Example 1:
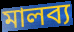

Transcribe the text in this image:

মালব্য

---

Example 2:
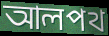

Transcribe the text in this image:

আলপথ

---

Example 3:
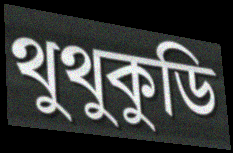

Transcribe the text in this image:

থুথুকুডি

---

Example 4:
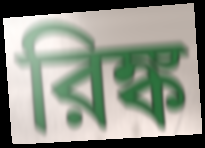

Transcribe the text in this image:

রিঙ্ক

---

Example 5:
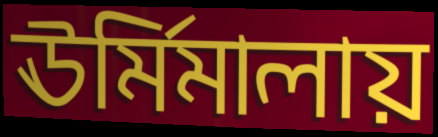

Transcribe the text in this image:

ঊর্মিমালায়